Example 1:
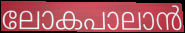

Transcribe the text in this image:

ലോകപാലാൻ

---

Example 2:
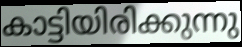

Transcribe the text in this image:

കാട്ടിയിരിക്കുന്നു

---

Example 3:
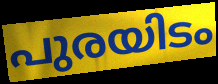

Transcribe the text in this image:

പുരയിടം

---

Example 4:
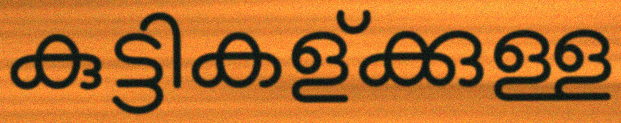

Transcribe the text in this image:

കുട്ടികള്ക്കുള്ള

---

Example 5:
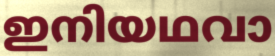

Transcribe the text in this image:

ഇനിയഥവാ